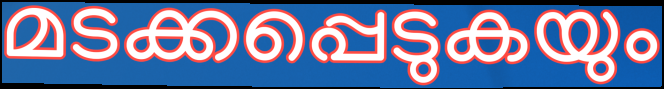
മടക്കപ്പെടുകയും